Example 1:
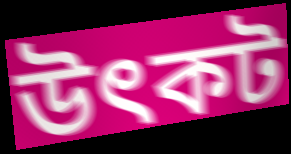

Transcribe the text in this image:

উৎকট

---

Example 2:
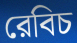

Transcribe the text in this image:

রেবিচ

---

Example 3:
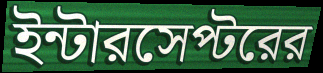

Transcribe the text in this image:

ইন্টারসেপ্টরের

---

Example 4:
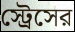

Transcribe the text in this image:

স্ট্রেসের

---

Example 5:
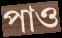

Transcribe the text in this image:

পাও